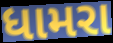
ધામરા